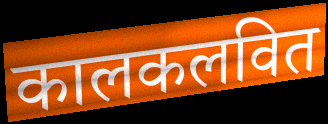
कालकलवित